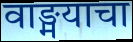
वाङ्मयाचा